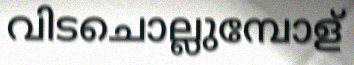
വിടചൊല്ലുമ്പോള്